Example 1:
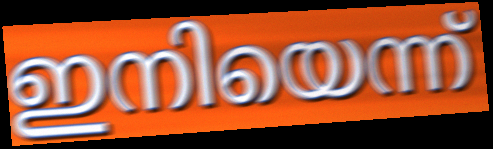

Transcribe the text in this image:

ഇനിയെന്ന്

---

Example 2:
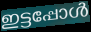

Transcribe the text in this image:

ഇട്ടപ്പോൾ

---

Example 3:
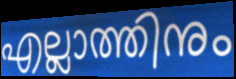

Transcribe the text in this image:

എല്ലാത്തിനും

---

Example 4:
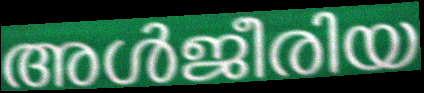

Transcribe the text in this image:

അൾജീരിയ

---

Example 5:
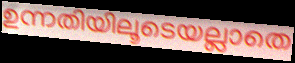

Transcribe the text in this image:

ഉന്നതിയിലൂടെയല്ലാതെ